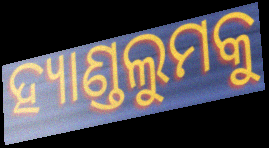
ହ୍ୟାଣ୍ଡଲୁମକୁ